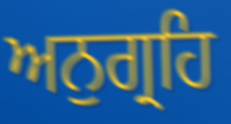
ਅਨੁਗ੍ਰਹਿ